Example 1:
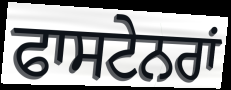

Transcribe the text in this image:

ਫਾਸਟੇਨਰਾਂ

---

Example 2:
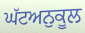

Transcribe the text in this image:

ਘੱਟਅਨੁਕੂਲ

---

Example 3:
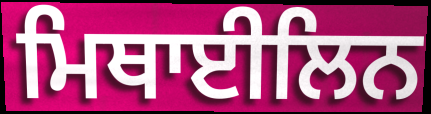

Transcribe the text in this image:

ਮਿਥਾਈਲਿਨ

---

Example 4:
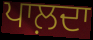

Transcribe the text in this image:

ਪਾਲ਼ਦਾ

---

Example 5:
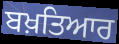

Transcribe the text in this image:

ਬਖ਼ਤਿਆਰ